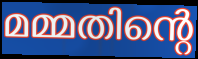
മമ്മതിന്റെ